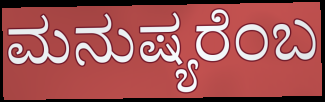
ಮನುಷ್ಯರೆಂಬ